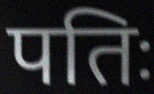
पतिः